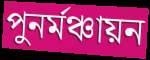
পুনর্মঞ্চায়ন